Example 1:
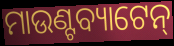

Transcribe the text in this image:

ମାଉଣ୍ଟବ୍ୟାଟେନ୍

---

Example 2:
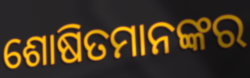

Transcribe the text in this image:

ଶୋଷିତମାନଙ୍କର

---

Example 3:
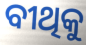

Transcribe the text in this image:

ବୀଥିକୁ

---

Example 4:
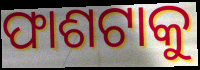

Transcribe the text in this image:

ଫାଶଟାକୁ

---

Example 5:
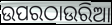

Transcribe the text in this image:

ଉପରଠାଉରିଆ